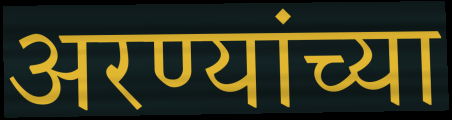
अरण्यांच्या